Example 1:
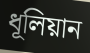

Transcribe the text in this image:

ধূলিয়ান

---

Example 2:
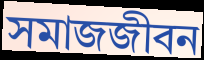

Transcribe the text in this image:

সমাজজীবন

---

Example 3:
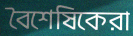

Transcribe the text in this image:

বৈশেষিকেরা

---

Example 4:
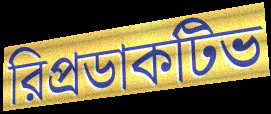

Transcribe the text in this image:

রিপ্রডাকটিভ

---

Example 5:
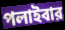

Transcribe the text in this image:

পলাইবার